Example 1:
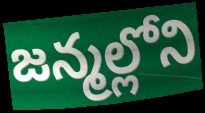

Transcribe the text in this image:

జన్మల్లోని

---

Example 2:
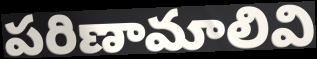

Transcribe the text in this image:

పరిణామాలివి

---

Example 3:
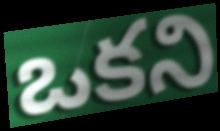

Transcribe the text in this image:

ఒకని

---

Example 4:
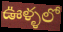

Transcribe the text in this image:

ఊళ్ళలో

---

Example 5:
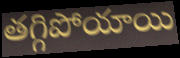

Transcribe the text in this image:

తగ్గిపోయాయి